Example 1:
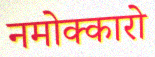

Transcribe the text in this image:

नमोक्कारो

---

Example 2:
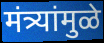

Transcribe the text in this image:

मंत्र्यांमुळे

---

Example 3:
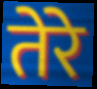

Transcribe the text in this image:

तेरे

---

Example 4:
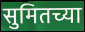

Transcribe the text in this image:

सुमितच्या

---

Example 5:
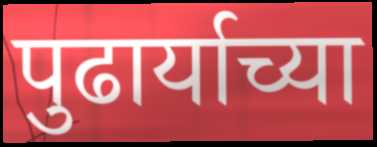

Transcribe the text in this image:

पुढार्याच्या